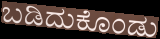
ಬಡಿದುಕೊಂಡು